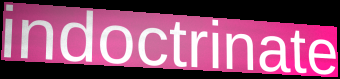
indoctrinate